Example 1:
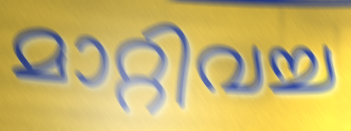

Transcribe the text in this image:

മാറ്റിവച്ച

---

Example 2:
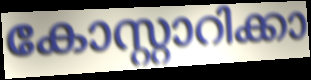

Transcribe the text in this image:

കോസ്റ്റാറിക്കാ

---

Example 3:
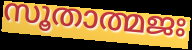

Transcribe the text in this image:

സൂതാത്മജഃ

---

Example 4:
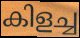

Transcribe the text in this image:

കിളച്ച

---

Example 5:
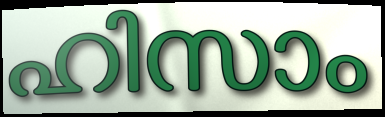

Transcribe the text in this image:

ഹിസാം